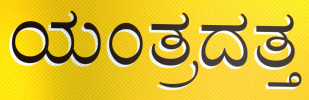
ಯಂತ್ರದತ್ತ